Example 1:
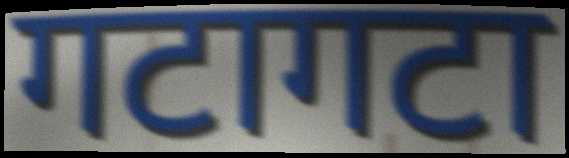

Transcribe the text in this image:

गटागटा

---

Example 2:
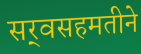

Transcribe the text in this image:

सर्वसहमतीने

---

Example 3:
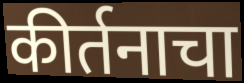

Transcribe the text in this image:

कीर्तनाचा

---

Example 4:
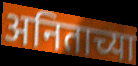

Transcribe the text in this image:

अनिताच्या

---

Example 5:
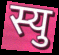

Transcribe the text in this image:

स्यु